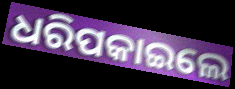
ଧରିପକାଇଲେ